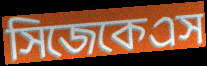
সিজেকেএস